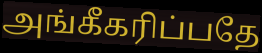
அங்கீகரிப்பதே